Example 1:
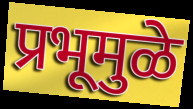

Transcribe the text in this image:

प्रभूमुळे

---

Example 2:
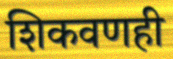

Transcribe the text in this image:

शिकवणही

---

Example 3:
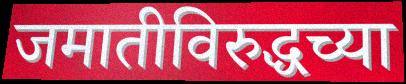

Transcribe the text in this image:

जमातीविरुद्धच्या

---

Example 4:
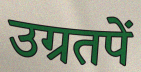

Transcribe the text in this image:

उग्रतपें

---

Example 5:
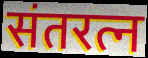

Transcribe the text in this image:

संतरत्न